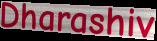
Dharashiv